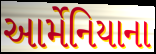
આર્મેનિયાના